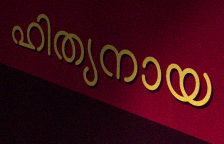
ഹിത്യനായ